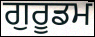
ਗੁਰੂਡਮ